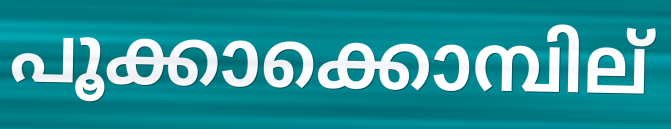
പൂക്കാക്കൊമ്പില്